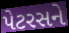
પેટરસને